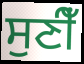
ਸੁਣੀਁ